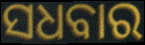
ସଧବାର